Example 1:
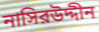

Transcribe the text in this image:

নাসিরউদ্দীন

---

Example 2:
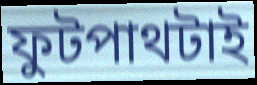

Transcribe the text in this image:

ফুটপাথটাই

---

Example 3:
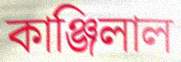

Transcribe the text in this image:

কাঞ্জিলাল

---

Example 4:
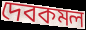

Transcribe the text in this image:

দেবকমল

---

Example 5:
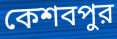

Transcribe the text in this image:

কেশবপুর